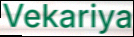
Vekariya